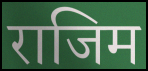
राजिम